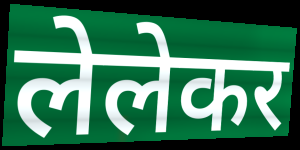
लेलेकर